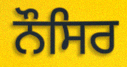
ਨੌਸਿਰ